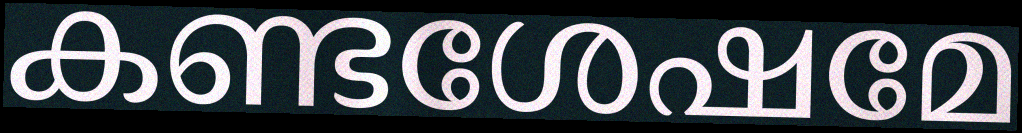
കണ്ടശേഷമേ